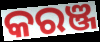
କରଞ୍ଜ